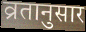
व्रतानुसार